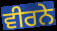
ਵੀਰਨੇ